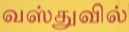
வஸ்துவில்